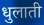
धुलाती